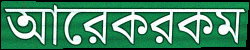
আরেকরকম